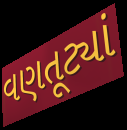
વણતૂટ્યાં